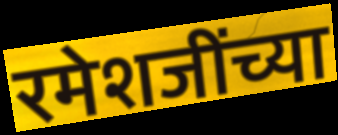
रमेशजींच्या